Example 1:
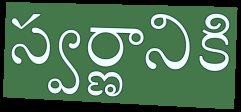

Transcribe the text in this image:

స్వర్ణానికి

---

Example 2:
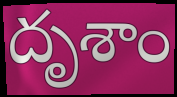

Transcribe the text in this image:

దృశాం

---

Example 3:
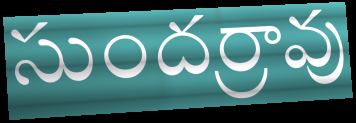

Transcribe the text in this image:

సుందర్రావు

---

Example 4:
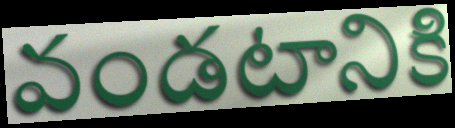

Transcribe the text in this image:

వండటానికి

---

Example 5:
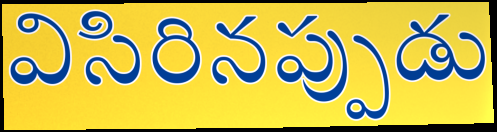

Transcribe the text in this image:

విసిరినప్పుడు